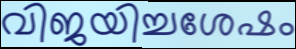
വിജയിച്ചശേഷം